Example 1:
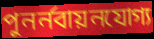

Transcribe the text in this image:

পুনর্নবায়নযোগ্য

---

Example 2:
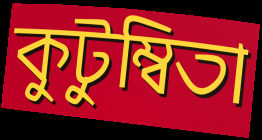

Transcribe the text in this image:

কুটুম্বিতা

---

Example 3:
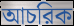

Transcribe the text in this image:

আচরিক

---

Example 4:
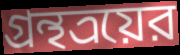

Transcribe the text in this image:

গ্রন্থত্রয়ের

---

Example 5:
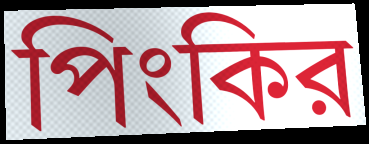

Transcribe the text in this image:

পিংকির